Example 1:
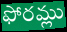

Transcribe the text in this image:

ఫోరమ్లు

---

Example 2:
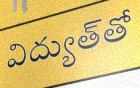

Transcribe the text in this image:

విద్యుత్‌తో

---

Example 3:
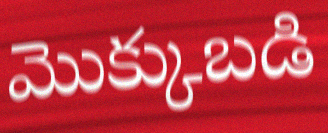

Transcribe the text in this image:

మొక్కుబడి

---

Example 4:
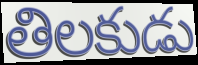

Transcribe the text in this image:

తిలకుడు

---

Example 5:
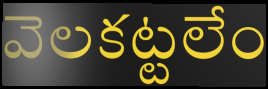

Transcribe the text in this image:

వెలకట్టలేం